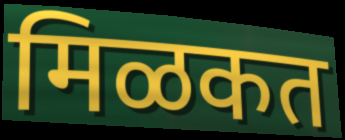
मिळकत